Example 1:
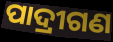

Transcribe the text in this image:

ପାଦ୍ରୀଗଣ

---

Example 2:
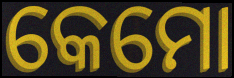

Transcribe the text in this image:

କେମୋ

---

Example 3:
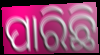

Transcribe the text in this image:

ପାରିଛି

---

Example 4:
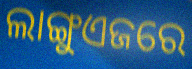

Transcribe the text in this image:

ଲାଙ୍ଗୁଏଜରେ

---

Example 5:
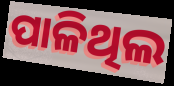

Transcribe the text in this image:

ପାଳିଥିଲ